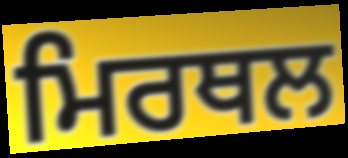
ਮਿਰਥਲ